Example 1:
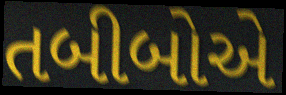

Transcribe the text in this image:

તબીબોએ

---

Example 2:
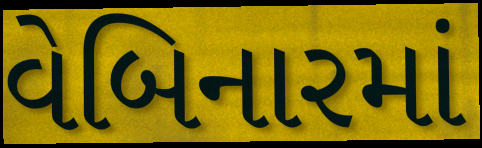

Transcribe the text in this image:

વેબિનારમાં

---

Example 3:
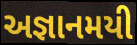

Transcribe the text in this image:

અજ્ઞાનમયી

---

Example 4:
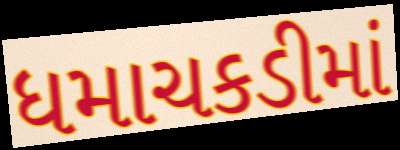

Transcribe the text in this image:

ધમાચકડીમાં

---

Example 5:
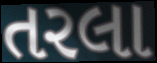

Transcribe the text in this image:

તરલા